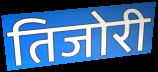
तिजोरी